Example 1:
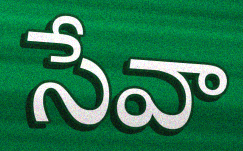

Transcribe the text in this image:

సేవా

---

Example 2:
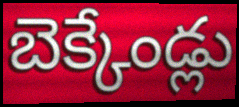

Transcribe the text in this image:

బెక్కేండ్లు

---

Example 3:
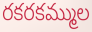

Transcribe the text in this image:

రకరకమ్ముల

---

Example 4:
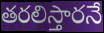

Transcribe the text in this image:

తరలిస్తారనే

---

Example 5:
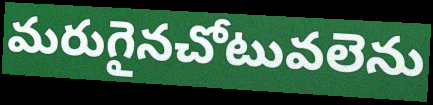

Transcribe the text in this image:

మరుగైనచోటువలెను